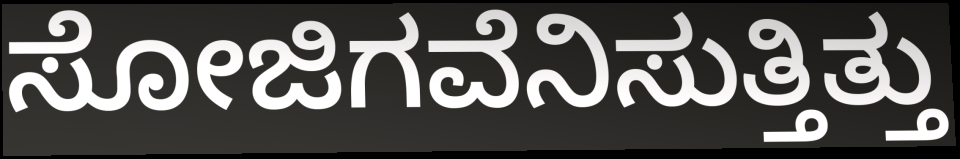
ಸೋಜಿಗವೆನಿಸುತ್ತಿತ್ತು